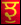
ਝੁ